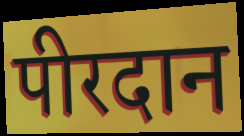
पीरदान